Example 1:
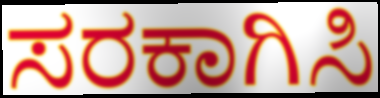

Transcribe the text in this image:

ಸರಕಾಗಿಸಿ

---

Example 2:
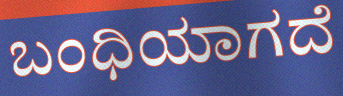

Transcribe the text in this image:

ಬಂಧಿಯಾಗದೆ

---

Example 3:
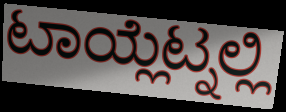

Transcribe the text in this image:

ಟಾಯ್ಲೆಟ್ನಲ್ಲಿ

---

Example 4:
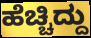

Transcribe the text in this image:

ಹೆಚ್ಚಿದ್ದು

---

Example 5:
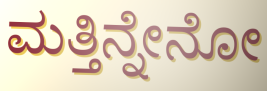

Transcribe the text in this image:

ಮತ್ತಿನ್ನೇನೋ